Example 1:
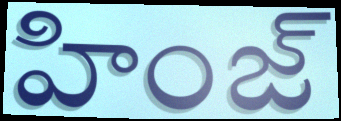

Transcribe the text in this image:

హింజ్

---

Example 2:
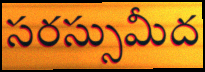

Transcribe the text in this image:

సరస్సుమీద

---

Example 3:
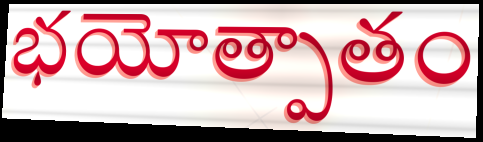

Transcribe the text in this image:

భయోత్పాతం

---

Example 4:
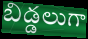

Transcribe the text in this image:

బిడ్డలుగా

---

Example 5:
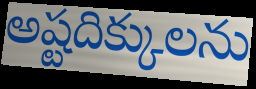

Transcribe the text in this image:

అష్టదిక్కులను